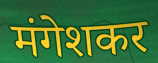
मंगेशकर